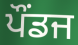
ਪੌਂਡਜ